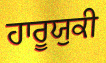
ਹਾਰੂਯੁਕੀ